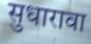
सुधारावा